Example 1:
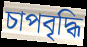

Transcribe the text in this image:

চাপবৃদ্ধি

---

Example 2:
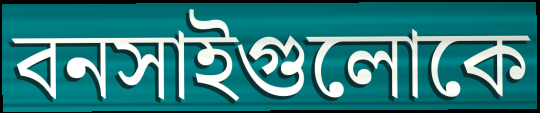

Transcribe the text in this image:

বনসাইগুলোকে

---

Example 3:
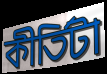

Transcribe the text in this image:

কীর্তিটা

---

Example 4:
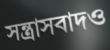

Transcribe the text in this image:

সন্ত্রাসবাদও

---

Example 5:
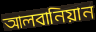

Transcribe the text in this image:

আলবানিয়ান